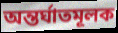
অন্তর্ঘাতমূলক